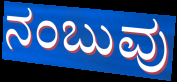
ನಂಬುವು